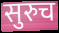
सुरुच